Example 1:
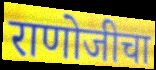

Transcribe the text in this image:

राणोजीचा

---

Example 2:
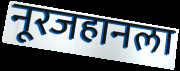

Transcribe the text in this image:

नूरजहानला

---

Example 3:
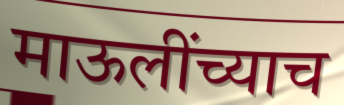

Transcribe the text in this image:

माऊलींच्याच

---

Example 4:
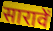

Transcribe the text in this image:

सारावें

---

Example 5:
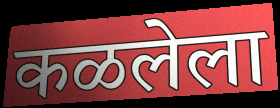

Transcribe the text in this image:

कळलेला